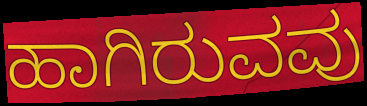
ಹಾಗಿರುವವು